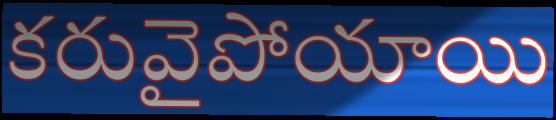
కరువైపోయాయి